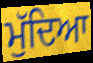
ਮੁੱਦਿਆ